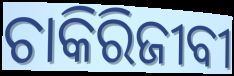
ଚାକିରିଜୀବୀ